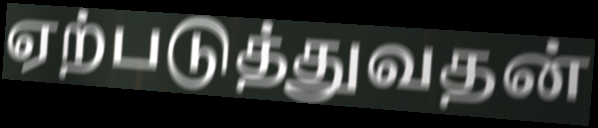
ஏற்படுத்துவதன்